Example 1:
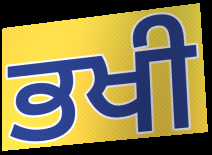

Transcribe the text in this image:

ਭਖੀ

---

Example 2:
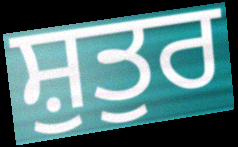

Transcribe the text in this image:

ਸ਼ੁਤੁਰ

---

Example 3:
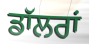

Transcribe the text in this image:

ਡਾੱਲਰਾਂ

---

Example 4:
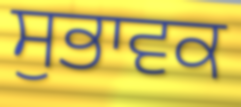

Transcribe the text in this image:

ਸੁਭਾਵਕ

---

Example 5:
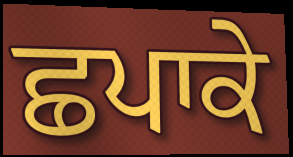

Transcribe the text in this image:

ਛਪਾਕੇ